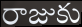
రాజుకు